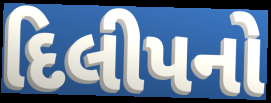
દિલીપનો